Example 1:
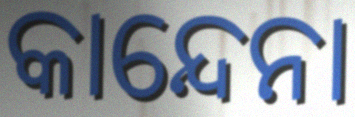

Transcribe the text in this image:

କାନ୍ଦେନା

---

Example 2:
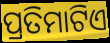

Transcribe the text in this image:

ପ୍ରତିମାଟିଏ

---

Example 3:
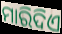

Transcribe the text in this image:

ମାରିଦିଏ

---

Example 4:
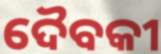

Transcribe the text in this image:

ଦୈବକୀ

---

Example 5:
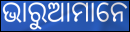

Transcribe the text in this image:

ଭାରୁଆମାନେ